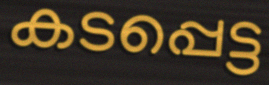
കടപ്പെട്ട